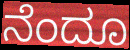
ನೆಂದೂ